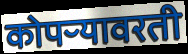
कोपऱ्यावरती